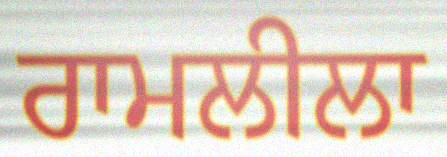
ਰਾਮਲੀਲਾ